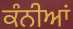
ਕੰਨੀਆਂ